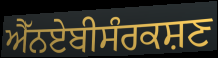
ਐੱਨਏਬੀਸੰਰਕਸ਼ਣ